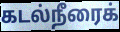
கடல்நீரைக்